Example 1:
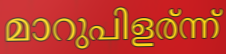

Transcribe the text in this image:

മാറുപിളര്ന്ന്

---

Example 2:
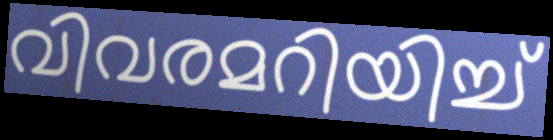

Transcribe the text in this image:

വിവരമറിയിച്ച്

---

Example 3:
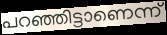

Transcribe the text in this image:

പറഞ്ഞിട്ടാണെന്ന്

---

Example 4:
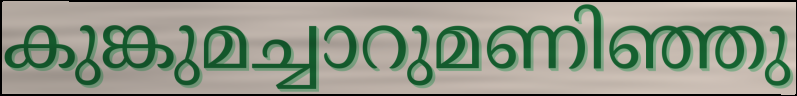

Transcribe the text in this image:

കുങ്കുമച്ചാറുമണിഞ്ഞു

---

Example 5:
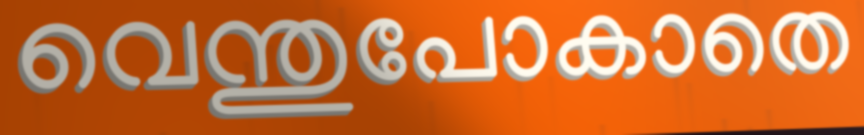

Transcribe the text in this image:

വെന്തുപോകാതെ